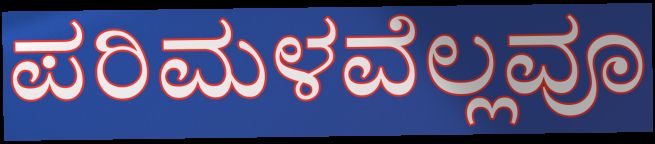
ಪರಿಮಳವೆಲ್ಲವೂ